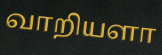
வாறியளா